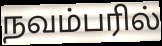
நவம்பரில்